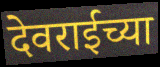
देवराईच्या